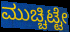
ಮುಚ್ಚಿಟ್ಟೇ